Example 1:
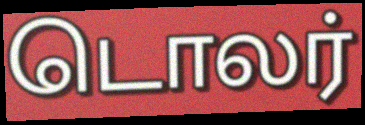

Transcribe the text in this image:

டொலர்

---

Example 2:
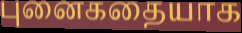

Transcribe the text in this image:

புனைகதையாக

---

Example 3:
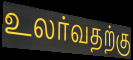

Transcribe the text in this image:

உலர்வதற்கு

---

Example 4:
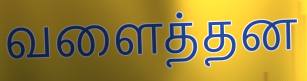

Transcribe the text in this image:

வளைத்தன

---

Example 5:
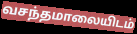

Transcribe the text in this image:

வசந்தமாலையிடம்